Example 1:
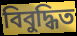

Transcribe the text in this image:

বিবুদ্ধিত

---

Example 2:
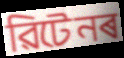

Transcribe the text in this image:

ৱিটেনৰ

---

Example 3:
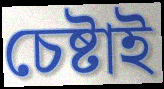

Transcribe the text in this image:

চেষ্টাই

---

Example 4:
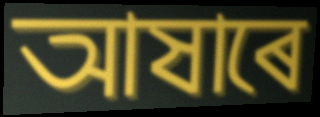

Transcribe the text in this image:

আষাৰে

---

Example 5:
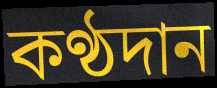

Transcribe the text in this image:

কণ্ঠদান